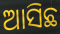
ଆସିଛ